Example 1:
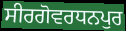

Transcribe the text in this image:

ਸੀਰਗੋਵਰਧਨਪੁਰ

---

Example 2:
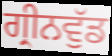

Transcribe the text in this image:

ਗ੍ਰੀਨਵੁੱਡ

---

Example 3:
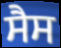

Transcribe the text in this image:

ਸੈਸ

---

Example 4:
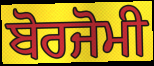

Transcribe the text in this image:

ਬੋਰਜੋਮੀ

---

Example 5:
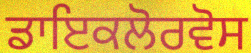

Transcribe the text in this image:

ਡਾਇਕਲੋਰਵੋਸ